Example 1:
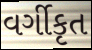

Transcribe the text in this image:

વર્ગીકૃત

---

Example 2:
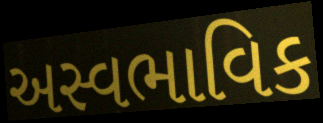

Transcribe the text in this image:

અસ્વભાવિક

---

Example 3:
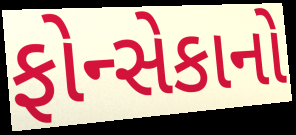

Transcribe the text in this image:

ફોન્સેકાનો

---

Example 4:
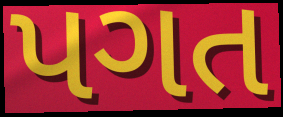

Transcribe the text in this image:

પગત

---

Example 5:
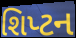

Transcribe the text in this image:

શિપ્ટન